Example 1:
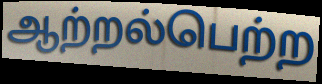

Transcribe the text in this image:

ஆற்றல்பெற்ற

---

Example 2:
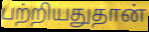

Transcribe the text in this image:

பற்றியதுதான்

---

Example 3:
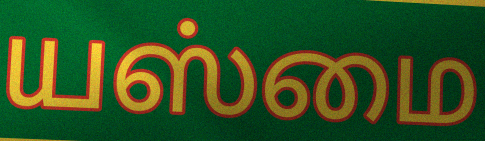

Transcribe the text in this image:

யஸ்மை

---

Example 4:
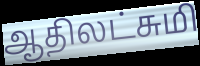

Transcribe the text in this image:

ஆதிலட்சுமி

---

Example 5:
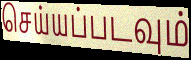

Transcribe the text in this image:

செய்யப்படவும்